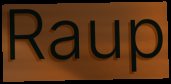
Raup